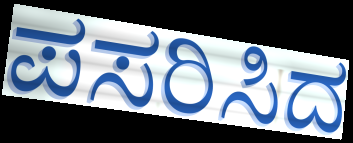
ಪಸರಿಸಿದ